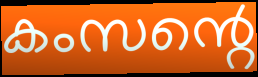
കംസന്റെ